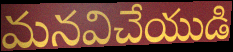
మనవిచేయుడి